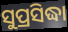
ସୁପ୍ରସିଦ୍ଧା